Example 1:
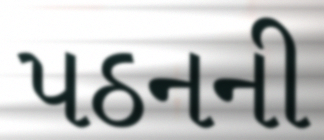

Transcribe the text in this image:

પઠનની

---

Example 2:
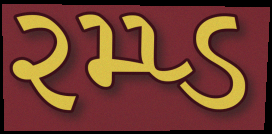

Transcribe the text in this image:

રમ્પ્ડ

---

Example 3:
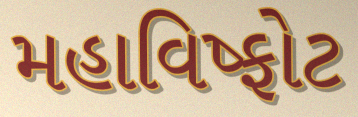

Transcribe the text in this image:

મહાવિષ્ફોટ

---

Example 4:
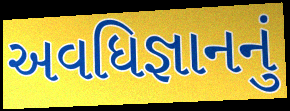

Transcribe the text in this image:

અવધિજ્ઞાનનું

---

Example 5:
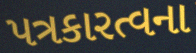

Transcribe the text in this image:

પત્રકારત્વના